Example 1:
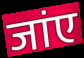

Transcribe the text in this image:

जांए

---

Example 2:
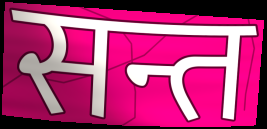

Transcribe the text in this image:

सन्त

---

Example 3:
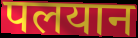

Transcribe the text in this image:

पलयान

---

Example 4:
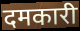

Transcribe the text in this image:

दमकारी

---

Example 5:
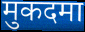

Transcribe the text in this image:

मुकदमा